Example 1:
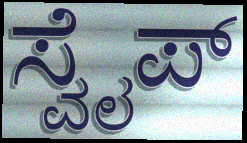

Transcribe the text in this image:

ಸ್ವೈಪ್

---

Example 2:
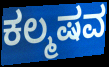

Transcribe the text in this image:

ಕಲ್ಮಷವ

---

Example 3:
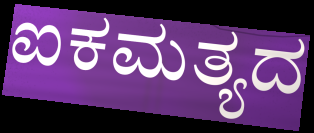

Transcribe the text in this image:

ಐಕಮತ್ಯದ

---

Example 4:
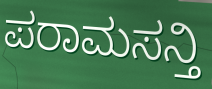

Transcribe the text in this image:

ಪರಾಮಸನ್ತಿ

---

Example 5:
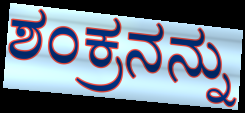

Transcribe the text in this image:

ಶಂಕ್ರನನ್ನು